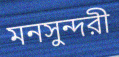
মনসুন্দরী